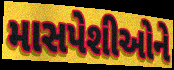
માસપેશીઓને